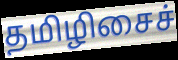
தமிழிசைச்